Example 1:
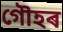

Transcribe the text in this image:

গৌহৰ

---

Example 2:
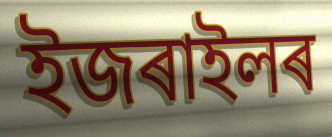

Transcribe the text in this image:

ইজৰাইলৰ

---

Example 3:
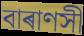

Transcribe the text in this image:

বাৰাণসী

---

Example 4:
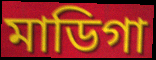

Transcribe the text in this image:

মাডিগা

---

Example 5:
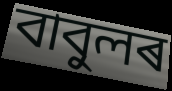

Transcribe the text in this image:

বাবুলৰ